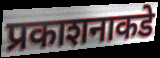
प्रकाशनाकडे